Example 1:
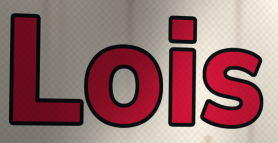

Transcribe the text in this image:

Lois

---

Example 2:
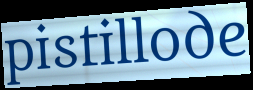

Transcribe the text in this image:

pistillode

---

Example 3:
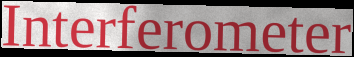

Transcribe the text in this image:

Interferometer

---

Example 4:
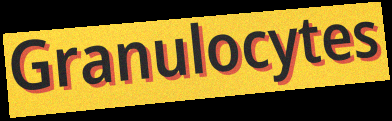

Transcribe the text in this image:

Granulocytes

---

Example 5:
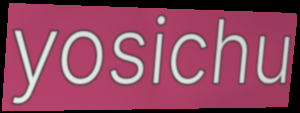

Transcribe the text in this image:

yosichu